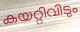
കയറ്റിവിടും